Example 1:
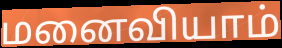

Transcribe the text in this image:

மனைவியாம்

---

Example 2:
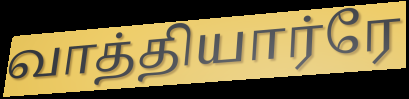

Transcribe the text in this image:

வாத்தியார்ரே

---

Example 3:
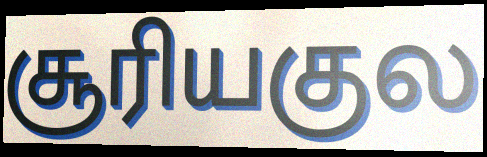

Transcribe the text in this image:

சூரியகுல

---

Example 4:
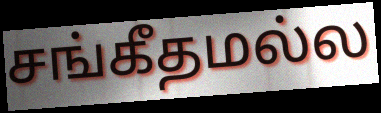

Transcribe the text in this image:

சங்கீதமல்ல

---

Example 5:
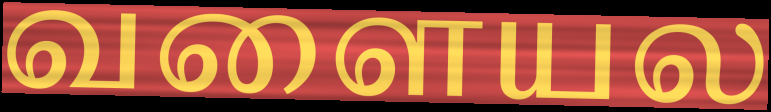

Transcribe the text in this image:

வளையல